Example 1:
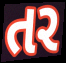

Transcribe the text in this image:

તર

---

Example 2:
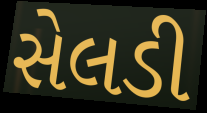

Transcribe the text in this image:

સેલડી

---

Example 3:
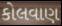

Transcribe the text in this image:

કોલવાણ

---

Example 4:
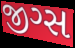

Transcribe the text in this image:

જીગ્સ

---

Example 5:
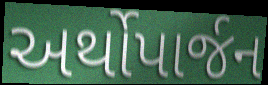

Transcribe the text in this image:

અર્થોપાર્જન